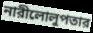
নারীলোলুপতার